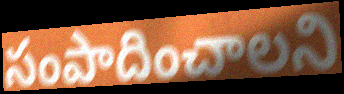
సంపాదించాలని